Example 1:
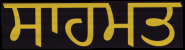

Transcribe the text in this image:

ਸਾਹਮਤ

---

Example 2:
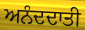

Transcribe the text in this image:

ਅਨੰਦਦਾਤੀ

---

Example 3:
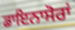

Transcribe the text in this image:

ਡਾਇਨਾਸੋਰਾਂ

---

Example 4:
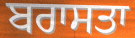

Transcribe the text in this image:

ਬਰਾਸਤਾ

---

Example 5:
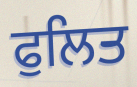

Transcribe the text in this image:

ਫੁਲਿਤ